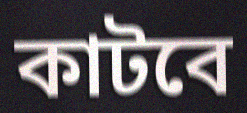
কাটবে